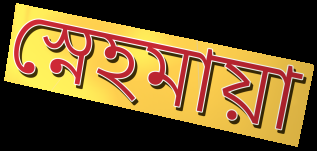
স্নেহমায়া